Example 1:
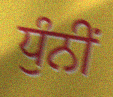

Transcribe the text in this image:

ਧੁੰਨੀਂ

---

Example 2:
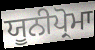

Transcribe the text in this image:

ਯੂਨੀਪ੍ਰੋਮਾ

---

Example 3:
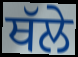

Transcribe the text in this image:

ਥੱਲੇ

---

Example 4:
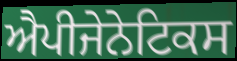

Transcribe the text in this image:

ਐਪੀਜੇਨੇਟਿਕਸ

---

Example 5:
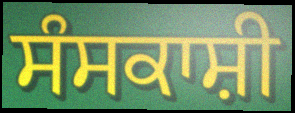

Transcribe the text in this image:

ਸੰਸਕਾਸ਼ੀ